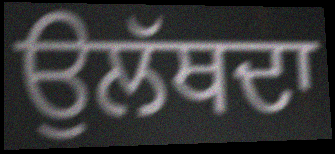
ਉਲੱਥਦਾ